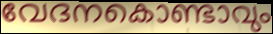
വേദനകൊണ്ടാവും